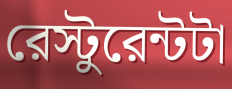
রেস্টুরেন্টটা